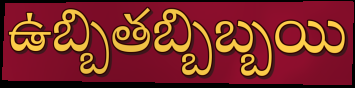
ఉబ్బితబ్బిబ్బయి